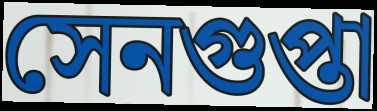
সেনগুপ্তা